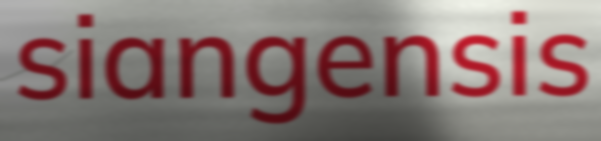
siangensis